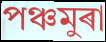
পঞ্চমুৰা